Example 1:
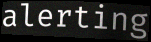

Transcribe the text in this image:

alerting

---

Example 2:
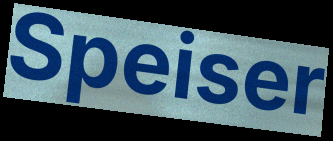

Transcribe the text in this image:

Speiser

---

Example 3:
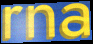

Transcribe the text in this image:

rna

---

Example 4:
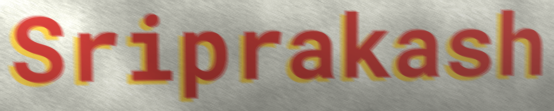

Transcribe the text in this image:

Sriprakash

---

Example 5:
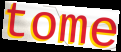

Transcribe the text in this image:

tome